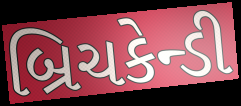
બ્રિચકેન્ડી